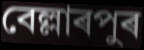
বেল্লাৰপুৰ